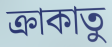
ক্রাকাতু